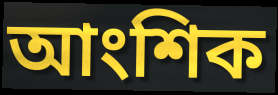
আংশিক